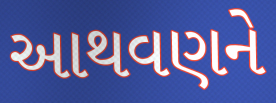
આથવણને